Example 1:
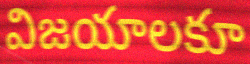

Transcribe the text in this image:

విజయాలకూ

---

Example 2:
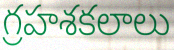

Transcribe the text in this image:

గ్రహశకలాలు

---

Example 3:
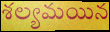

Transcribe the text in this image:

శల్యమయిన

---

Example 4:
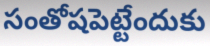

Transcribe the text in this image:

సంతోషపెట్టేందుకు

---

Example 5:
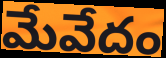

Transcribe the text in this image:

మేవేదం